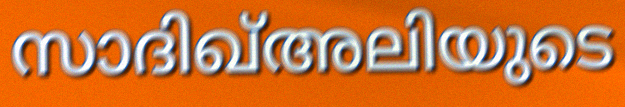
സാദിഖ്അലിയുടെ